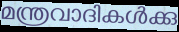
മന്ത്രവാദികൾക്കു